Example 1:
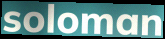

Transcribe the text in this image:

soloman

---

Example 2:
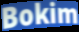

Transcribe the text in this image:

Bokim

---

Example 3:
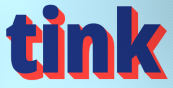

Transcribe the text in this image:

tink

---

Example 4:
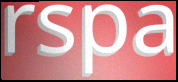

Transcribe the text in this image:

rspa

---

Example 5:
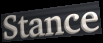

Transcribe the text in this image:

Stance